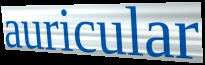
auricular